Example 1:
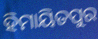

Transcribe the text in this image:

ହିମାୟିତପୁର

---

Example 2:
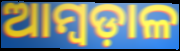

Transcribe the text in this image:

ଆମ୍ବଡ଼ାଳ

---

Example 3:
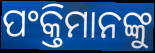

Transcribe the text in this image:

ପଂକ୍ତିମାନଙ୍କୁ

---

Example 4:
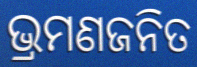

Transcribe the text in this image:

ଭ୍ରମଣଜନିତ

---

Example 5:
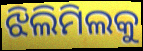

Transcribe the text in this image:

ଝିଲିମିଲକୁ